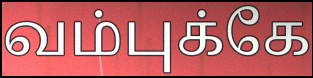
வம்புக்கே